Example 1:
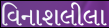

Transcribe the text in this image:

વિનાશલીલા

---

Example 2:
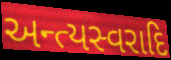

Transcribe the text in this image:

અન્ત્યસ્વરાદિ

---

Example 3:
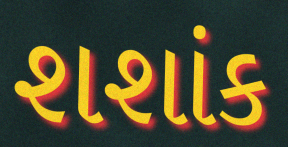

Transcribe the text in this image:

શશાંક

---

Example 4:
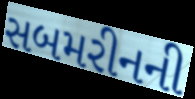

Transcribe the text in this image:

સબમરીનની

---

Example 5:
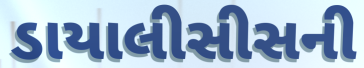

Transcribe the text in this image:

ડાયાલીસીસની